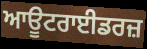
ਆਊਟਰਾਈਡਰਜ਼